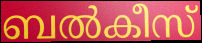
ബൽകീസ്